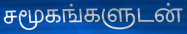
சமூகங்களுடன்